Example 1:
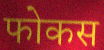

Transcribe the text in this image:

फोकस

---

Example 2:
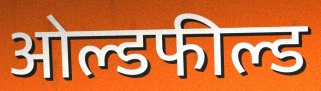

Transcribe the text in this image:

ओल्डफील्ड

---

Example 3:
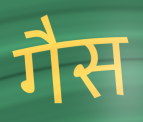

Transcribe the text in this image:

गैस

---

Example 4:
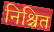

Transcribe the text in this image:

निश्चित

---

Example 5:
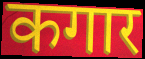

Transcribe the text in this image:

कगार